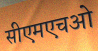
सीएमएचओ